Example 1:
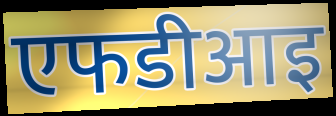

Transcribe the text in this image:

एफडीआइ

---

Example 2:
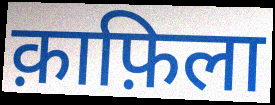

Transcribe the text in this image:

क़ाफ़िला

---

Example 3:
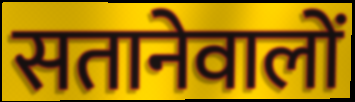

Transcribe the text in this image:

सतानेवालों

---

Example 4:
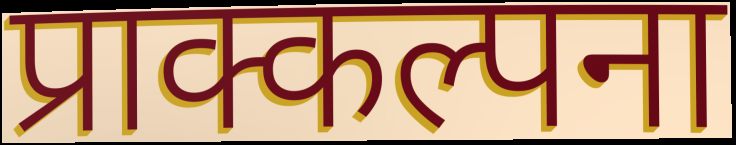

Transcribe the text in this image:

प्राक्कल्पना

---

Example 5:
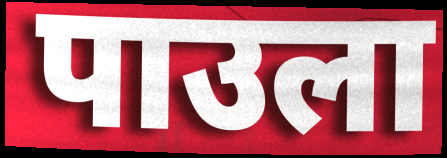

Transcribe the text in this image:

पाउला